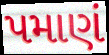
પમાણં